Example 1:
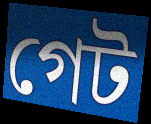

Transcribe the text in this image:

গেট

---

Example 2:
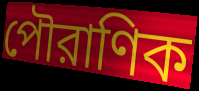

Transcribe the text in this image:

পৌরাণিক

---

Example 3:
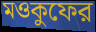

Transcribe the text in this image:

মওকুফের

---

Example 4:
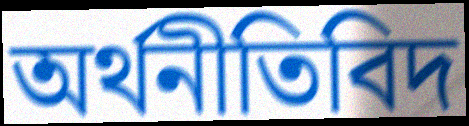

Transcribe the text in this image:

অর্থনীতিবিদ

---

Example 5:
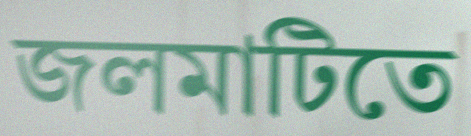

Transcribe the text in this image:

জলমাটিতে